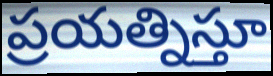
ప్రయత్నిస్తూ